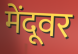
मेंदूवर